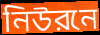
নিউরনে